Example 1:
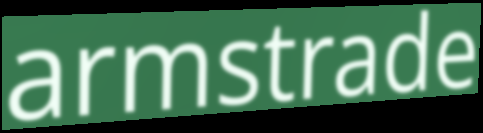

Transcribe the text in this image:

armstrade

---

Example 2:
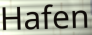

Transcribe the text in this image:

Hafen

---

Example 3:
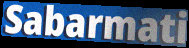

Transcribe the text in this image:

Sabarmati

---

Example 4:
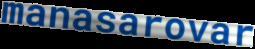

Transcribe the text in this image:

manasarovar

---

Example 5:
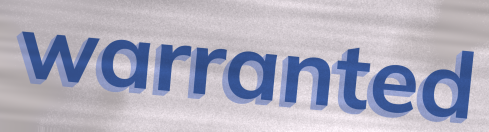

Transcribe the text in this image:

warranted